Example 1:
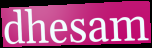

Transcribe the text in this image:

dhesam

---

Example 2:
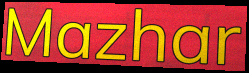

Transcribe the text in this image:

Mazhar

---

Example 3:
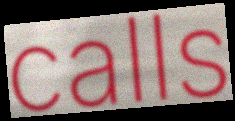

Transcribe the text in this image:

calls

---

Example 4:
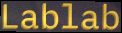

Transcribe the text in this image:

Lablab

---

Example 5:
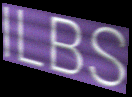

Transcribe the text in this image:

ILBS